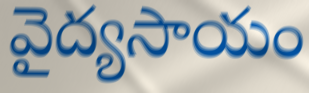
వైద్యసాయం